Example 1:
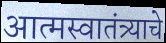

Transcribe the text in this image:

आत्मस्वातंत्र्याचे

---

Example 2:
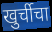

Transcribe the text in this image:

खुर्चीचा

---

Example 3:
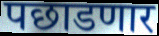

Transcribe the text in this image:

पछाडणार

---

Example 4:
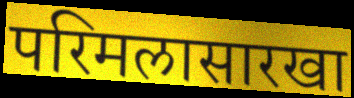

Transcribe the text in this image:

परिमलासारखा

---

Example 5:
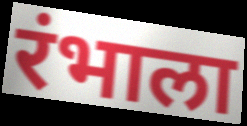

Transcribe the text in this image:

रंभाला